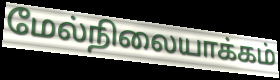
மேல்நிலையாக்கம்